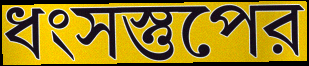
ধংসস্তুপের